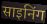
साइनिंग